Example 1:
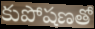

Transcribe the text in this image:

కుపోషణతో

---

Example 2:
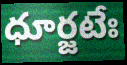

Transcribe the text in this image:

ధూర్జటేః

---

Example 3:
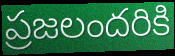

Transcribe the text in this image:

ప్రజలందరికి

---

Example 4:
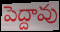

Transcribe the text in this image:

పెద్దావు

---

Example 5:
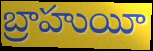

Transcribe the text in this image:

బ్రాహుయీ